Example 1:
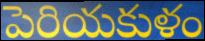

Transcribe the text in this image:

పెరియకుళం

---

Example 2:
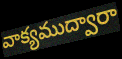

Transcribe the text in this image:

వాక్యముద్వారా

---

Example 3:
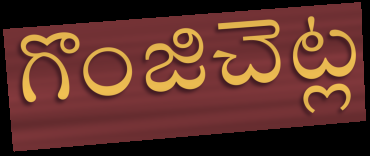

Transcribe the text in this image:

గొంజిచెట్ల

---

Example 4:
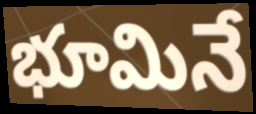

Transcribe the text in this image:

భూమినే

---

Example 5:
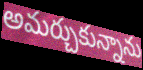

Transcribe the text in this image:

అమర్చుకున్నాను